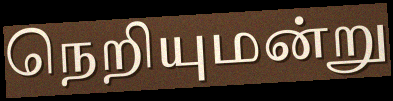
நெறியுமன்று